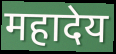
महादेय